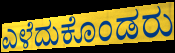
ಎಳೆದುಕೊಂಡರು